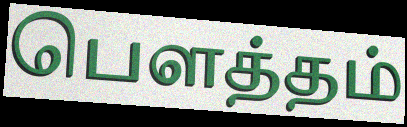
பௌத்தம்